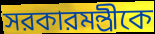
সরকারমন্ত্রীকে